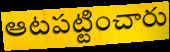
ఆటపట్టించారు